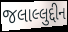
જલાલ્લુદ્દીન